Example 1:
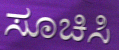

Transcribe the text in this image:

ಸೂಚಿಸಿ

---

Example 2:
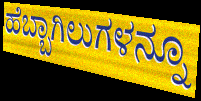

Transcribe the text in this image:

ಹೆಬ್ಬಾಗಿಲುಗಳನ್ನೂ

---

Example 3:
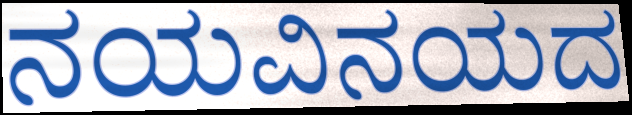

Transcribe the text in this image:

ನಯವಿನಯದ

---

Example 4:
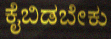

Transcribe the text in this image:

ಕೈಬಿಡಬೇಕು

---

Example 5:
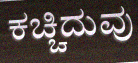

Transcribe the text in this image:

ಕಚ್ಚಿದುವು